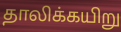
தாலிக்கயிறு